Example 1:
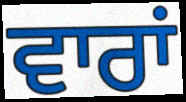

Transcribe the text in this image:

ਵਾਰਾਂ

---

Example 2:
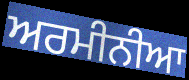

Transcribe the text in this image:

ਅਰਮੀਨੀਆ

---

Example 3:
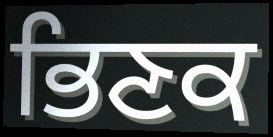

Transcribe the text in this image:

ਭਿਣਕ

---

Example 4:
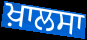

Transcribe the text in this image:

ਖ਼ਾਲਸਾ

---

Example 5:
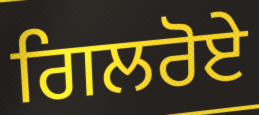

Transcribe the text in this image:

ਗਿਲਰੋਏ